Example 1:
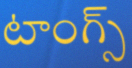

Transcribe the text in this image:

టాంగ్స్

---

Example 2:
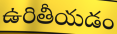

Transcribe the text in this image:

ఉరితీయడం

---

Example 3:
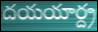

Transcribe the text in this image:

దయయార్ద్ర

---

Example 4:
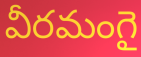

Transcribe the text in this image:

వీరమంగై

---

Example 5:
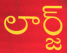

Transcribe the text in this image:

లార్జ్